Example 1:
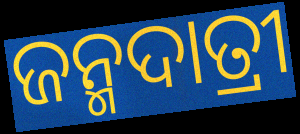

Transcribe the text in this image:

ଜନ୍ମଦାତ୍ରୀ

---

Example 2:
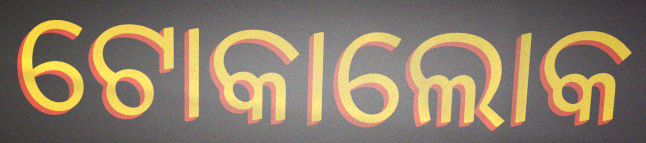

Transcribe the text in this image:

ଟୋକାଲୋକ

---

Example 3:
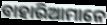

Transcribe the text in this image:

ବାହାରିଆମାନେ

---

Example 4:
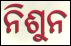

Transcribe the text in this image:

ନିଶୁନ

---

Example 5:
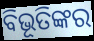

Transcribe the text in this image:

ବିଭୂତିଙ୍କର